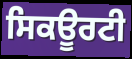
ਸਿਕਊਰਟੀ